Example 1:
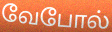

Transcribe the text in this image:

வேபோல்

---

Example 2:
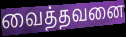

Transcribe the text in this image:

வைத்தவனை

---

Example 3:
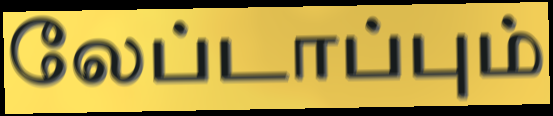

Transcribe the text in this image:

லேப்டாப்பும்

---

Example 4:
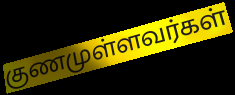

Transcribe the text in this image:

குணமுள்ளவர்கள்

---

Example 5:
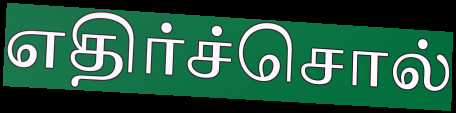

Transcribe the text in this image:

எதிர்ச்சொல்